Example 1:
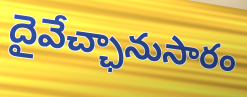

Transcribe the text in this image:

దైవేచ్ఛానుసారం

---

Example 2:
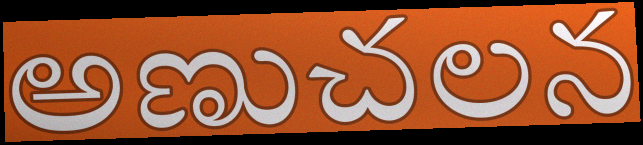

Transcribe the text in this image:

అణుచలన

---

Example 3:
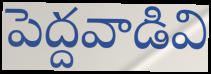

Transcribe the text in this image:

పెద్దవాడివి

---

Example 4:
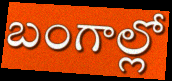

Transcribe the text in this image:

బంగాల్లో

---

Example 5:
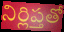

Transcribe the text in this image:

నిర్లిప్తతో